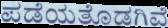
ಪಡೆಯತೊಡಗಿವೆ